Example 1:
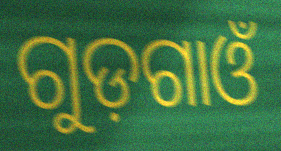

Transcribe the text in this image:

ଗୁଡ଼ଗାଓଁ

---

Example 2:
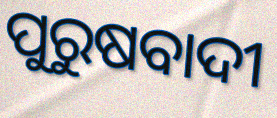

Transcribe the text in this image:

ପୁରୁଷବାଦୀ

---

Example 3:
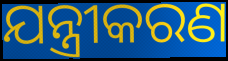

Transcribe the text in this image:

ଯନ୍ତ୍ରୀକରଣ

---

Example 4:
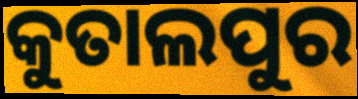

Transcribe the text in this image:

କୁତାଲପୁର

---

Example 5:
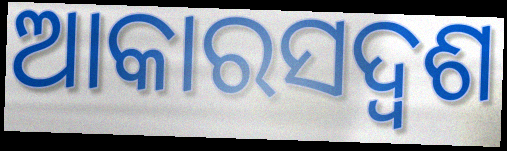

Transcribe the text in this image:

ଆକାରସଦ୍ୱଶ